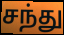
சந்து